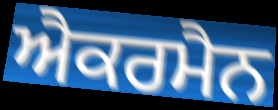
ਐਕਰਮੈਨ